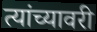
त्यांच्यावरी